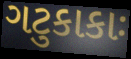
ગટુકાકાઃ